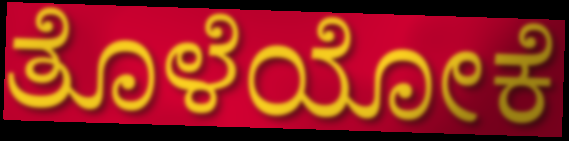
ತೊಳೆಯೋಕೆ